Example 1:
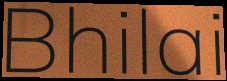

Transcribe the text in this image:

Bhilai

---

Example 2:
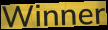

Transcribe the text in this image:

Winner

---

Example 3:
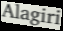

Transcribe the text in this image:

Alagiri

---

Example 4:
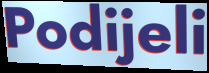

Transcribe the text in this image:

Podijeli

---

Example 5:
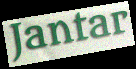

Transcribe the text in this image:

Jantar